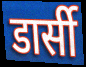
डार्सी